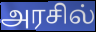
அரசில்